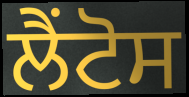
ਲੈਂਟੋਸ